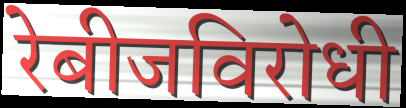
रेबीजविरोधी